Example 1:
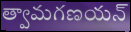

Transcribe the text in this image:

త్వామగణయన్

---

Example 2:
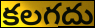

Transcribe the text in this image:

కలగదు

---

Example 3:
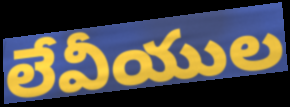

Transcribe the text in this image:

లేవీయుల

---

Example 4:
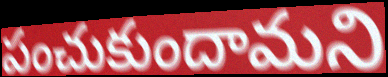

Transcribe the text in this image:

పంచుకుందామని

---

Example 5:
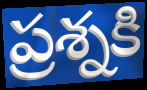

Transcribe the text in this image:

ప్రశ్నకి